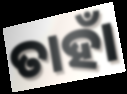
ତାହାଁ